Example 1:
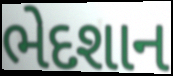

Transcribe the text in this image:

ભેદશાન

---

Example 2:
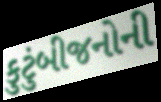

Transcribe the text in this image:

કુટુંબીજનોની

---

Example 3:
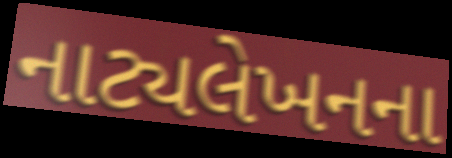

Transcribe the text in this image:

નાટ્યલેખનના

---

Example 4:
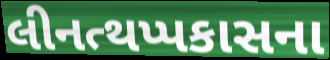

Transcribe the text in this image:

લીનત્થપ્પકાસના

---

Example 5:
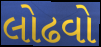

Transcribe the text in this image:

લોઢવો